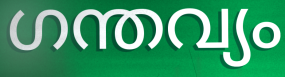
ഗന്തവ്യം